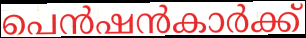
പെൻഷൻകാർക്ക്